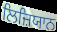
ਲਿਜ਼ਿਯਾਨ